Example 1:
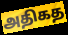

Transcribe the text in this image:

அதிகத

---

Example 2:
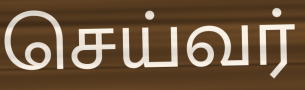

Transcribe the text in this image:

செய்வர்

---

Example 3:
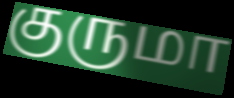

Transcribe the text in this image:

குருமா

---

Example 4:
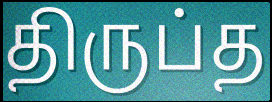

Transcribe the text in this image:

திருப்த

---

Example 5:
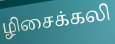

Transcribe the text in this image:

ழிசைக்கலி